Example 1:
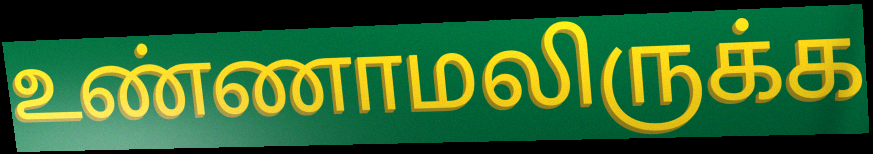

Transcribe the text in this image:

உண்ணாமலிருக்க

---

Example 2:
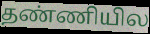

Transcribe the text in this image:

தண்ணியில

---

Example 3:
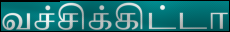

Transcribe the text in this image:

வச்சிக்கிட்டா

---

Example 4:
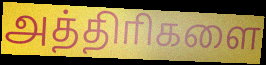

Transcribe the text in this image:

அத்திரிகளை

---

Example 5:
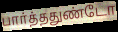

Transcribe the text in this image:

பார்த்ததுண்டோ